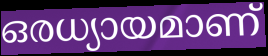
ഒരധ്യായമാണ്